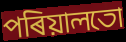
পৰিয়ালতো